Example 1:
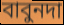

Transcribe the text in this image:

বাবুনদা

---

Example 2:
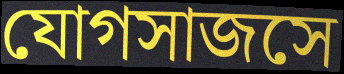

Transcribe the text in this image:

যোগসাজসে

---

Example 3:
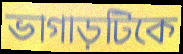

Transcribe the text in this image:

ভাগাড়টিকে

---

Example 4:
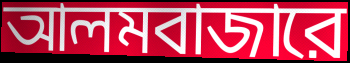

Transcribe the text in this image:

আলমবাজারে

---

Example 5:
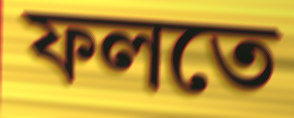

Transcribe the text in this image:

ফলতে